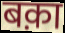
बक़ा